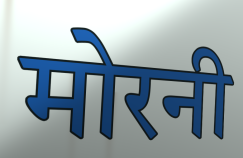
मोरनी